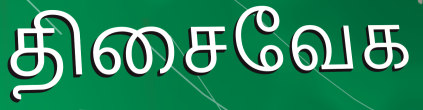
திசைவேக